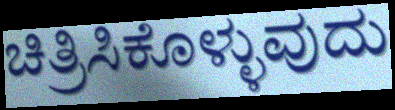
ಚಿತ್ರಿಸಿಕೊಳ್ಳುವುದು